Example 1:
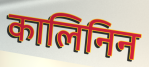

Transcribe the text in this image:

कालिनिन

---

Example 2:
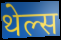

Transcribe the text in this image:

थेल्स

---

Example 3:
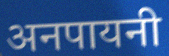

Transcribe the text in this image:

अनपायनी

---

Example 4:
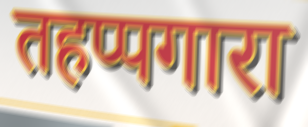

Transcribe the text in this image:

तहप्पगारा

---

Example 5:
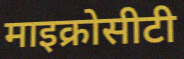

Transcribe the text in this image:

माइक्रोसीटी